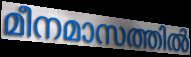
മീനമാസത്തിൽ